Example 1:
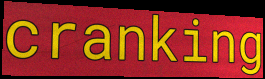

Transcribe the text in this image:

cranking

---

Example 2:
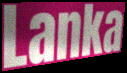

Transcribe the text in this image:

Lanka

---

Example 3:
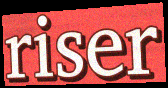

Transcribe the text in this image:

riser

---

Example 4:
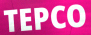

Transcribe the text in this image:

TEPCO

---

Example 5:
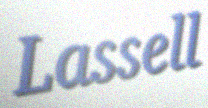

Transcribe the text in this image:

Lassell